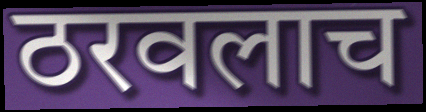
ठरवलाच